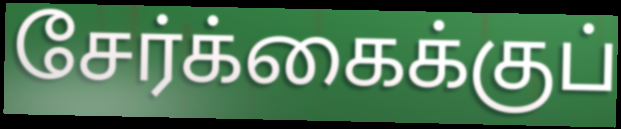
சேர்க்கைக்குப்